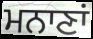
ਮਨਾਣਾਂ